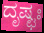
ದೃಷ್ಟಃ